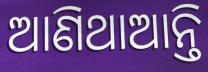
ଆଣିଥାଆନ୍ତି